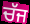
ਚੱਜ